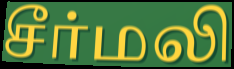
சீர்மலி